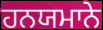
ਹਨਯਮਾਨੇ